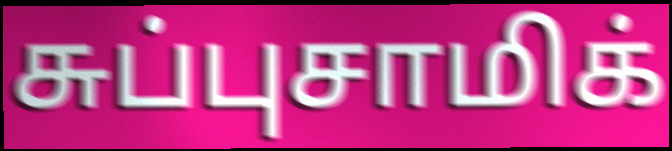
சுப்புசாமிக்